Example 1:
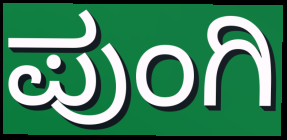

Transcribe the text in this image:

ಪುಂಗಿ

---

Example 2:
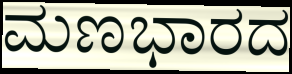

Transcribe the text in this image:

ಮಣಭಾರದ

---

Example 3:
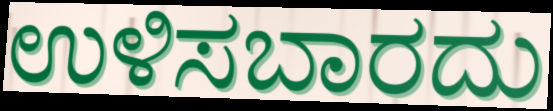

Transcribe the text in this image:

ಉಳಿಸಬಾರದು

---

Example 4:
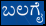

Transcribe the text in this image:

ಬಲಗೈ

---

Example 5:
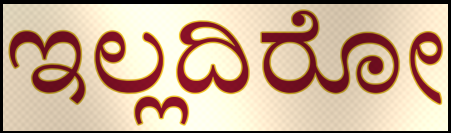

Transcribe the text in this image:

ಇಲ್ಲದಿರೋ